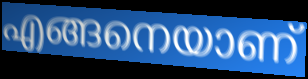
എങ്ങനെയാണ്